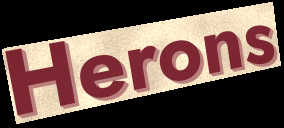
Herons